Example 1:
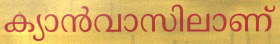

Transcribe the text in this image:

ക്യാൻവാസിലാണ്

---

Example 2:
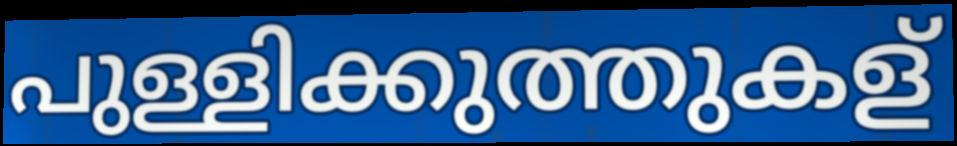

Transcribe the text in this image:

പുള്ളിക്കുത്തുകള്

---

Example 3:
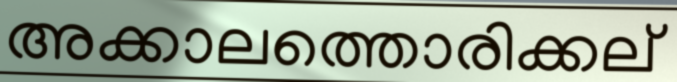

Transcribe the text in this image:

അക്കാലത്തൊരിക്കല്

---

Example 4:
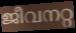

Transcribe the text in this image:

ജീവനറ്റ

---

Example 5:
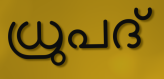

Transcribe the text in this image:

ധ്രുപദ്